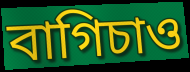
বাগিচাও